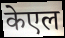
केएल